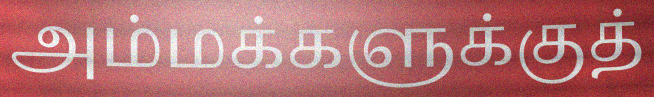
அம்மக்களுக்குத்